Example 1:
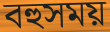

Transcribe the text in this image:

বহুসময়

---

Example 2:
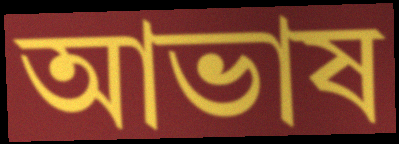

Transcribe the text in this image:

আভাষ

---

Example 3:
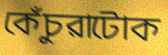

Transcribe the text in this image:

কেঁচুৱাটোক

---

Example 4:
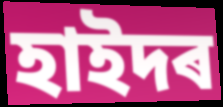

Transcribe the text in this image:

হাইদৰ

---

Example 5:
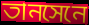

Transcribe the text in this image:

তানসেনে